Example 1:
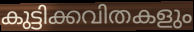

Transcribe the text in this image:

കുട്ടിക്കവിതകളും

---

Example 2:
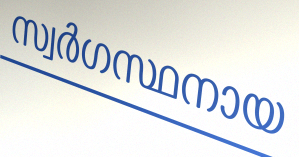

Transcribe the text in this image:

സ്വർഗസ്ഥനായ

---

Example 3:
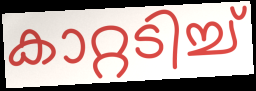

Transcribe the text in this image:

കാറ്റടിച്ച്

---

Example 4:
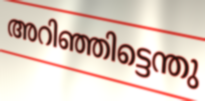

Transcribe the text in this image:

അറിഞ്ഞിട്ടെന്തു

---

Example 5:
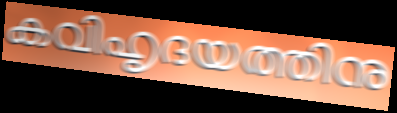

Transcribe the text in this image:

കവിഹൃദയത്തിനു